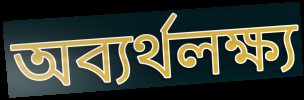
অব্যর্থলক্ষ্য